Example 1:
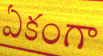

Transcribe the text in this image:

ఏకంగా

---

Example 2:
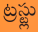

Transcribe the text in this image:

ట్రస్ట్లు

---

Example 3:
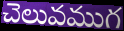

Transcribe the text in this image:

చెలువముగ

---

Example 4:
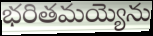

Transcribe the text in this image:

భరితమయ్యెను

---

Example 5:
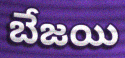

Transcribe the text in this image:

బేజయి